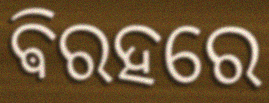
ଵିରହରେ